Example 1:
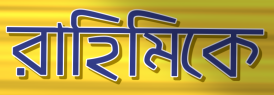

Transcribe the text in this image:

রাহিমিকে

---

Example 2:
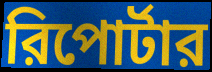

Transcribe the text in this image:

রিপোর্টার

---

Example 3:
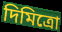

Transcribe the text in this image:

দিমিত্রো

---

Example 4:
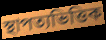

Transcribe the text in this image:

স্থাপত্যভিত্তিক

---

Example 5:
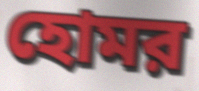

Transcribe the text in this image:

হোমর